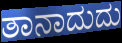
ತಾನಾದುದು